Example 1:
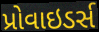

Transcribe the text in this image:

પ્રોવાઇડર્સ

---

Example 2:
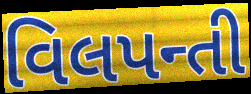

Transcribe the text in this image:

વિલપન્તી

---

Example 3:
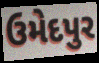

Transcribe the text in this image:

ઉમેદપુર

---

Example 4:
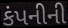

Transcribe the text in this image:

કંપનીની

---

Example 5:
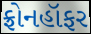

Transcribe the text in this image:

ફ્રોનહૉફર